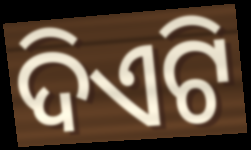
ଦିଏଟି